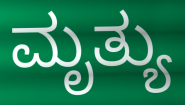
ಮೃತ್ಯು